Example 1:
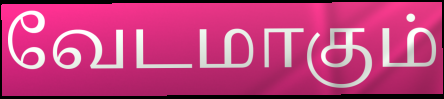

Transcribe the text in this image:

வேடமாகும்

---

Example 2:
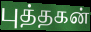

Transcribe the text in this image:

புத்தகன்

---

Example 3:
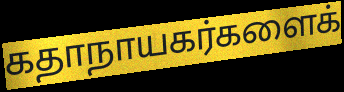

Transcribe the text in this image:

கதாநாயகர்களைக்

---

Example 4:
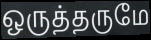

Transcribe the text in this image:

ஒருத்தருமே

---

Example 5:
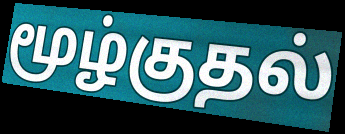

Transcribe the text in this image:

மூழ்குதல்